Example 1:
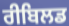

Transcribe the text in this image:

ਰੀਬਿਲਡ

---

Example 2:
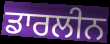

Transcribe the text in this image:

ਡਾਰਲੀਨ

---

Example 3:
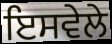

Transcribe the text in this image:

ਇਸਵੇਲੇ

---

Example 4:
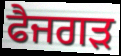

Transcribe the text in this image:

ਫੈਜਗੜ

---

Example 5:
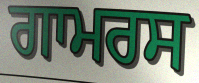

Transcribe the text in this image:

ਗਾਮਰਸ